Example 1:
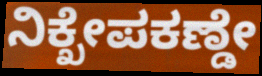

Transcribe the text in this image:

ನಿಕ್ಖೇಪಕಣ್ಡೇ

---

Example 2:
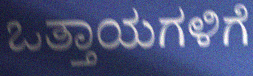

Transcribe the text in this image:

ಒತ್ತಾಯಗಳಿಗೆ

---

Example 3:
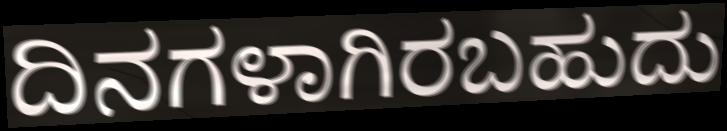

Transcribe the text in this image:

ದಿನಗಳಾಗಿರಬಹುದು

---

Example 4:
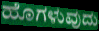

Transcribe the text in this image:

ಹೊಗಳುವುದು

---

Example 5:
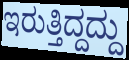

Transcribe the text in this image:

ಇರುತ್ತಿದ್ದದ್ದು